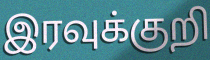
இரவுக்குறி